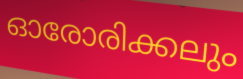
ഓരോരിക്കലും